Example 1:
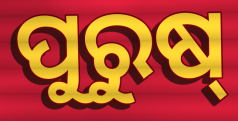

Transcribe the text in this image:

ପୁରୁଷ୍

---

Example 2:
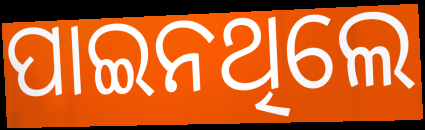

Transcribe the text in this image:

ପାଇନଥିଲେ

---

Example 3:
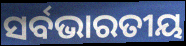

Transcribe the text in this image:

ସର୍ବଭାରତୀୟ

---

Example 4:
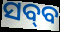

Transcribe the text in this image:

ସବ୍‌ବ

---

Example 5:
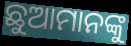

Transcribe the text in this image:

ଛୁଆମାନଙ୍କୁ